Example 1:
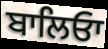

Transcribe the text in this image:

ਬਾਲਿਓਾ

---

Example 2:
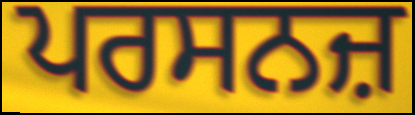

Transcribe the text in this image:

ਪਰਸਨਜ਼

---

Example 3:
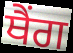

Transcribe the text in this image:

ਥੈਂਗ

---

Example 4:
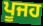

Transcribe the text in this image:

ਪੂਜਹ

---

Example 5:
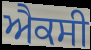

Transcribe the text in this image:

ਐਕਸੀ